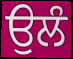
ਉਲੰ